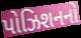
પોઝિશનનો